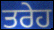
ਤਰੇਹ